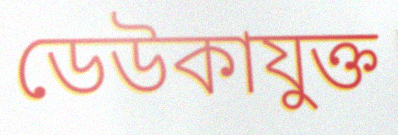
ডেউকাযুক্ত